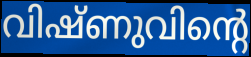
വിഷ്ണുവിന്റെ